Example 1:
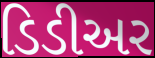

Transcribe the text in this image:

ડિડીઅર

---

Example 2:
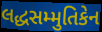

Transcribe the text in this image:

લદ્ધસમ્મુતિકેન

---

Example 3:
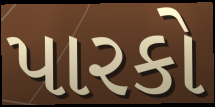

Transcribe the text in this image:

પારકો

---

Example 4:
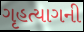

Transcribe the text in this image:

ગૃહત્યાગની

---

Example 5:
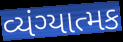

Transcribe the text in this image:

વ્યંગ્યાત્મક